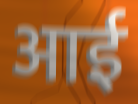
आई